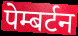
पेम्बर्टन